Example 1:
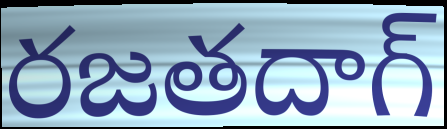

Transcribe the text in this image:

రజతదాగ్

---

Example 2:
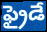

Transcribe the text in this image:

ఫ్రైడే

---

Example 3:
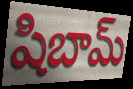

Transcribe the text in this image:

షిబామ్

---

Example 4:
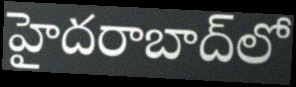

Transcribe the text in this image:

హైదరాబాద్‌లో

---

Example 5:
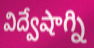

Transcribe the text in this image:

విద్వేషాగ్ని